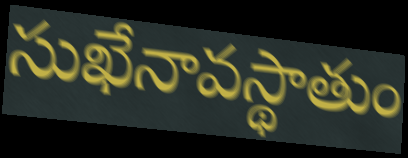
సుఖేనావస్థాతుం